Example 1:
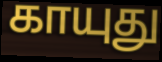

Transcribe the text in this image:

காயுது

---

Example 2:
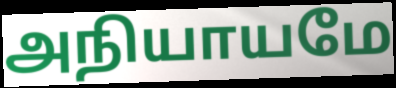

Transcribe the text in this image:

அநியாயமே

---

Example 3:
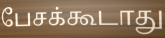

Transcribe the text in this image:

பேசக்கூடாது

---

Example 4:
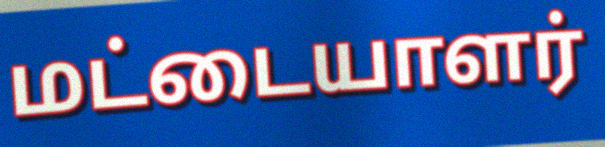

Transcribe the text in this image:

மட்டையாளர்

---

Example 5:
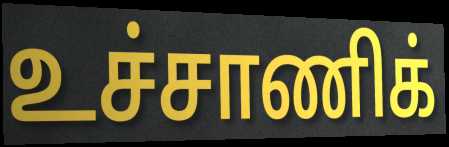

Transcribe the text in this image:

உச்சாணிக்